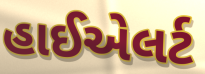
હાઈએલર્ટ